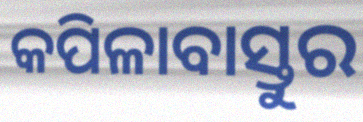
କପିଳାବାସ୍ତୁର